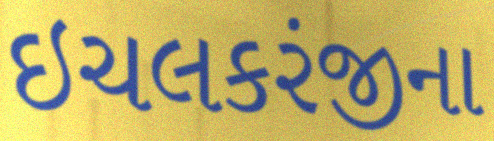
ઇચલકરંજીના